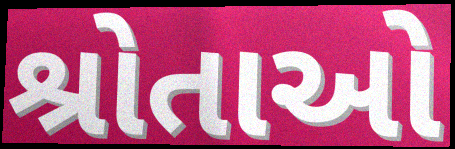
શ્રોતાઓ